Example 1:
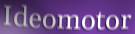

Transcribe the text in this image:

Ideomotor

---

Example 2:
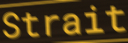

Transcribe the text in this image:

Strait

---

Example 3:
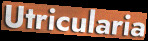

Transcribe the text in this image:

Utricularia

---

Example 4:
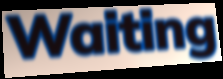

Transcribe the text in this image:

Waiting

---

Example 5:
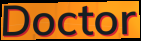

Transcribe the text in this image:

Doctor